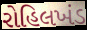
રોહિલખંડ